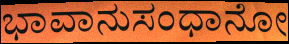
ಭಾವಾನುಸಂಧಾನೋ